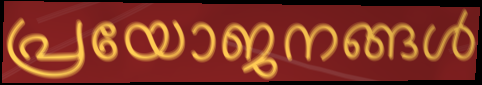
പ്രയോജനങ്ങൾ